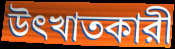
উৎখাতকারী